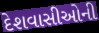
દેશવાસીઓની